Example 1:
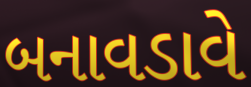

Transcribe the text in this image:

બનાવડાવે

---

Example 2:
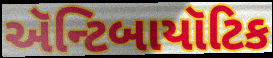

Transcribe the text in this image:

ઍન્ટિબાયૉટિક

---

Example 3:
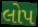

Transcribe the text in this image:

લોપ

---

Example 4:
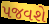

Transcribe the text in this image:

પજવશે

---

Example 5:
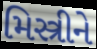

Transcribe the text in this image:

મિસ્ત્રીને